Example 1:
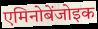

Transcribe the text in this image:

एमिनोबेंजोइक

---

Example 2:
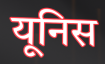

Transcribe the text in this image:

यूनिस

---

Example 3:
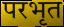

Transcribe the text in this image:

परभृत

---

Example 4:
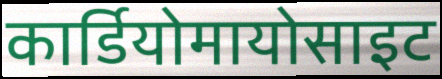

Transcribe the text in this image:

कार्डियोमायोसाइट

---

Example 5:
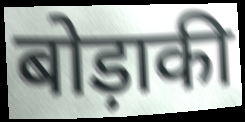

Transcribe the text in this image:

बोड़ाकी